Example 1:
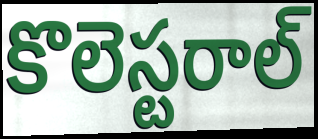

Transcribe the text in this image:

కొలెస్టరాల్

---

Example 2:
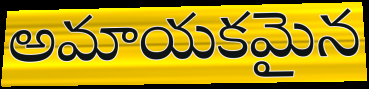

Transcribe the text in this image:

అమాయకమైన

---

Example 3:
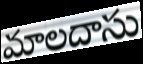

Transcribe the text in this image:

మాలదాసు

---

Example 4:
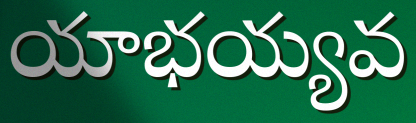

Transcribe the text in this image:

యాభయ్యవ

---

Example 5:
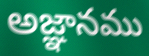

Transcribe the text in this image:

అజ్ఞానము